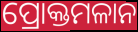
ପ୍ରୋକ୍ତମଳାନ